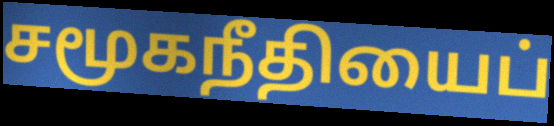
சமூகநீதியைப்